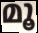
മൂ